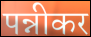
पन्नीकर